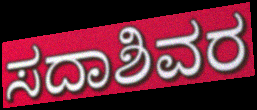
ಸದಾಶಿವರ